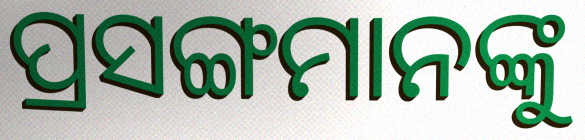
ପ୍ରସଙ୍ଗମାନଙ୍କୁ